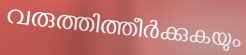
വരുത്തിത്തീർക്കുകയും